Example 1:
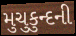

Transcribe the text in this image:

મુચુકુન્દની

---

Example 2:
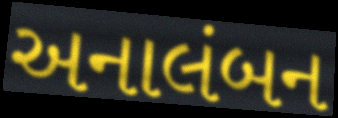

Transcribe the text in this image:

અનાલંબન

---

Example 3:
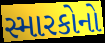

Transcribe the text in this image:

સ્મારકોનો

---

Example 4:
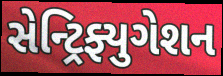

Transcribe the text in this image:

સેન્ટ્રિફ્યુગેશન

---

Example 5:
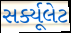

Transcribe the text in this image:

સર્ક્યૂલેટ